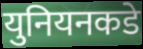
युनियनकडे